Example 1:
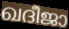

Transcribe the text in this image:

ഖദീജാ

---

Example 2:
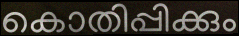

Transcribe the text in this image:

കൊതിപ്പിക്കും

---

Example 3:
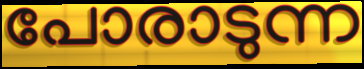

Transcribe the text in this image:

പോരാടുന്ന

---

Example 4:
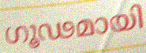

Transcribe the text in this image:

ഗൂഢമായി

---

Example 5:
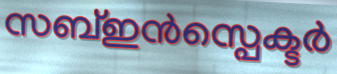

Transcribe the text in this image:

സബ്ഇൻസ്പെക്ടർ